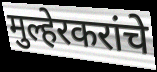
मुल्हेरकरांचे